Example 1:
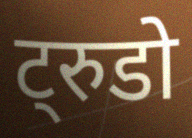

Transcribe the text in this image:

ट्रुडो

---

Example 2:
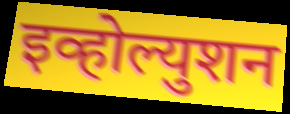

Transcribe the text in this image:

इव्होल्युशन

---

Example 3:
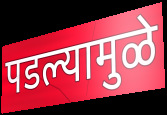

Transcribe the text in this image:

पडल्यामुळे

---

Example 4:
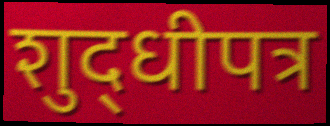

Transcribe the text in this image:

शुद्धीपत्र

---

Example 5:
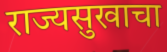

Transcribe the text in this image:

राज्यसुखाचा